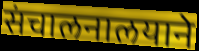
संचालनालयाने